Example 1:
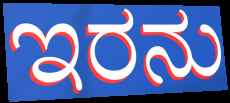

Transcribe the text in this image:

ಇರನು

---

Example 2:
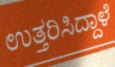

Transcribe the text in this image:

ಉತ್ತರಿಸಿದ್ದಾಳೆ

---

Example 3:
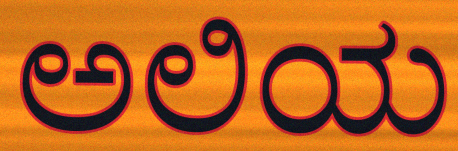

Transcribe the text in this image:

ಅಲಿಯ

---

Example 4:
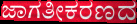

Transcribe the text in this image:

ಜಾಗತೀಕರಣದ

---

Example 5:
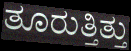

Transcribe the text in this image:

ತೂರುತ್ತಿತ್ತು